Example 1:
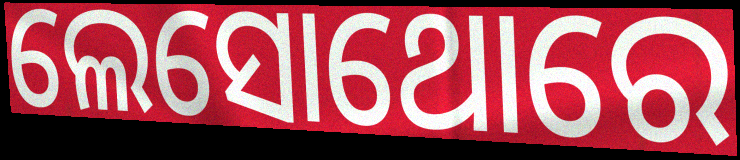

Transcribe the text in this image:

ଲେସୋଥୋରେ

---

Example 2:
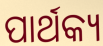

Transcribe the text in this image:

ପାର୍ଥକ୍ୟ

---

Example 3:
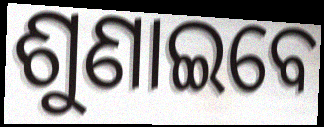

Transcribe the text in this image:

ଶୁଣାଇବେ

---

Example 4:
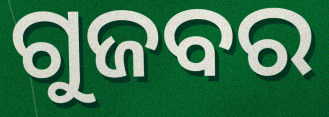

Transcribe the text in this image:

ଗୁଜବର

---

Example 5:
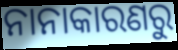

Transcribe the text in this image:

ନାନାକାରଣରୁ